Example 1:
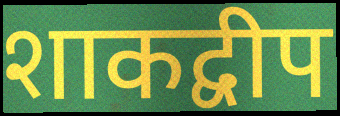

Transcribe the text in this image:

शाकद्वीप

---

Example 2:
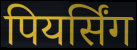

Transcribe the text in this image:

पियर्सिंग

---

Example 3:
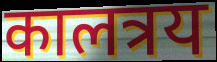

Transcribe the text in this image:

कालत्रय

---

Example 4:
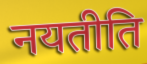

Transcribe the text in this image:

नयतीति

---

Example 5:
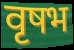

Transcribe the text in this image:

वृषभ